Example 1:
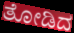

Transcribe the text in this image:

ತೋಡಿದ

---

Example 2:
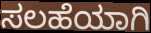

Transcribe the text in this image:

ಸಲಹೆಯಾಗಿ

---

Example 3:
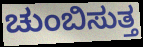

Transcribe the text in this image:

ಚುಂಬಿಸುತ್ತ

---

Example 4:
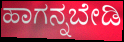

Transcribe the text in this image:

ಹಾಗನ್ನಬೇಡಿ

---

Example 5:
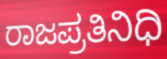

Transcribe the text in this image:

ರಾಜಪ್ರತಿನಿಧಿ